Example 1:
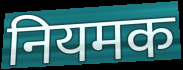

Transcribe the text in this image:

नियमक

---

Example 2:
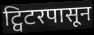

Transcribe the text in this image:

ट्विटरपासून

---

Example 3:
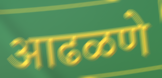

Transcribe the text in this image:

आढळणे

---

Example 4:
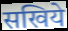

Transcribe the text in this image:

सखिये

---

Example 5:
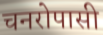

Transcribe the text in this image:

चनरोपासी